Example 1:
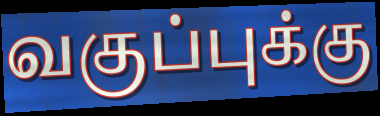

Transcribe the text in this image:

வகுப்புக்கு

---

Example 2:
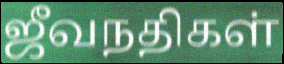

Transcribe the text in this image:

ஜீவநதிகள்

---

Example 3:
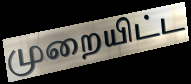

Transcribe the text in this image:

முறையிட்ட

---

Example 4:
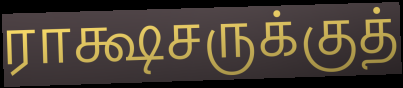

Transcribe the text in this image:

ராக்ஷசருக்குத்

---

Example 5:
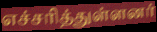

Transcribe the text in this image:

எச்சரித்துள்ளனர்